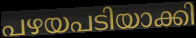
പഴയപടിയാക്കി